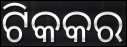
ଟିକକର